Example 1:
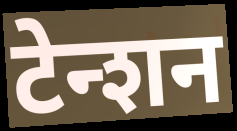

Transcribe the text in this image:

टेन्शन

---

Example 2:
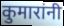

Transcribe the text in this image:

कुमारांनी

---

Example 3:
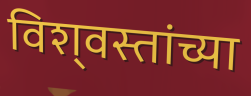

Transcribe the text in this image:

विश्वस्तांच्या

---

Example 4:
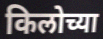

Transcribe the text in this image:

किलोच्या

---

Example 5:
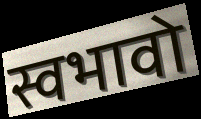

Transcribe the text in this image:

स्वभावो